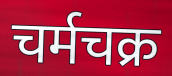
चर्मचक्र